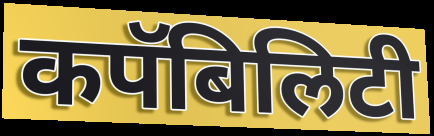
कपॅबिलिटी